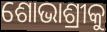
ଶୋଭାଶ୍ରୀକୁ